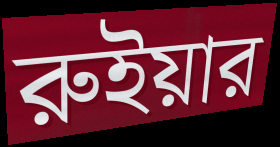
রুইয়ার